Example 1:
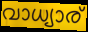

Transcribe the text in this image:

വാധ്യാര്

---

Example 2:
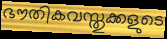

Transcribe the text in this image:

ഭൗതികവസ്തുക്കളുടെ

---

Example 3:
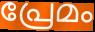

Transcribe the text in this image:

പ്രേമം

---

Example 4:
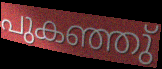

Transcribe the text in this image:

പുകഞ്ഞു്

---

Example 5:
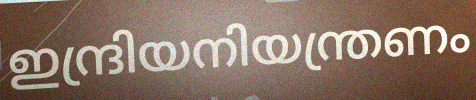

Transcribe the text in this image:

ഇന്ദ്രിയനിയന്ത്രണം